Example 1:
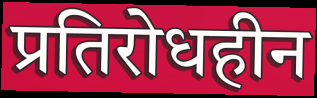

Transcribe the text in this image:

प्रतिरोधहीन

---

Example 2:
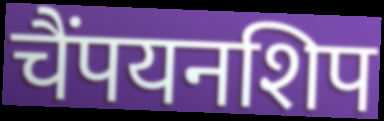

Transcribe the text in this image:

चैंपयनशिप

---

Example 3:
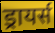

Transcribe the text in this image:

ड्रायर्स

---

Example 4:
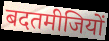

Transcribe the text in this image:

बदतमीजियों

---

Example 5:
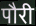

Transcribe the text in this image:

पौरी